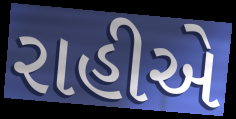
રાહીએ